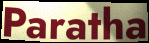
Paratha